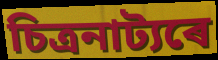
চিত্ৰনাট্যৰে